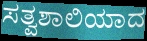
ಸತ್ವಶಾಲಿಯಾದ